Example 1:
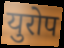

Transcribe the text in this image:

युरोप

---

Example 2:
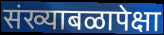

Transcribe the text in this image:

संख्याबळापेक्षा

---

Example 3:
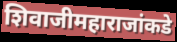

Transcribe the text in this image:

शिवाजीमहाराजांकडे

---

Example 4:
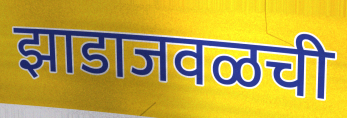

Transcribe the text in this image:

झाडाजवळची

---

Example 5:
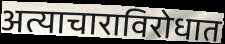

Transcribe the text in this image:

अत्याचाराविरोधात